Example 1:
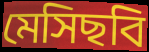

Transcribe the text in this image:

মেসিছবি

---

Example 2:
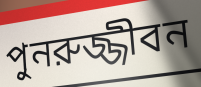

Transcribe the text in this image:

পুনরুজ্জীবন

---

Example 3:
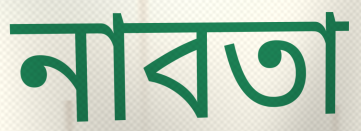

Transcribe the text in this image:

নাবতা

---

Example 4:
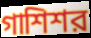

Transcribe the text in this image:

গাশিশর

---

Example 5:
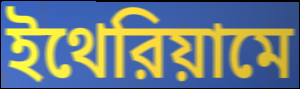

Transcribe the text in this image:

ইথেরিয়ামে